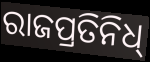
ରାଜପ୍ରତିନିଧ୍